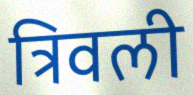
त्रिवली